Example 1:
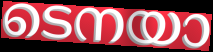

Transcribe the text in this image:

ടെനയാ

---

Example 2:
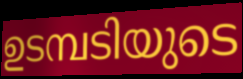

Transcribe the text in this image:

ഉടമ്പടിയുടെ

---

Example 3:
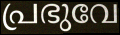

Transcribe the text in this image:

പ്രഭുവേ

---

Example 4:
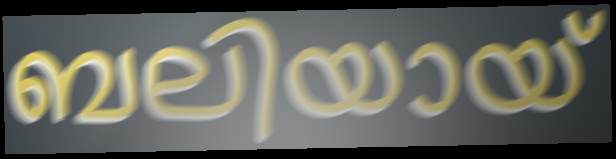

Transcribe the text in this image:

ബലിയായ്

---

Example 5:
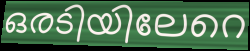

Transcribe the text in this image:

ഒരടിയിലേറെ